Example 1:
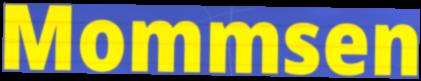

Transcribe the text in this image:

Mommsen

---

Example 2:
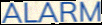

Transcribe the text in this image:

ALARM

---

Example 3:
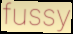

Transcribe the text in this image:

fussy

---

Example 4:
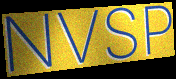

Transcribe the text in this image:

NVSP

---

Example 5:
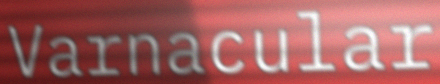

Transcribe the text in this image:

Varnacular